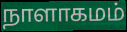
நாளாகமம்